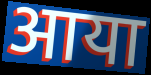
आया